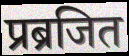
प्रब्रजित